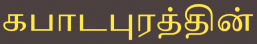
கபாடபுரத்தின்